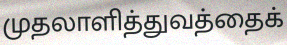
முதலாளித்துவத்தைக்